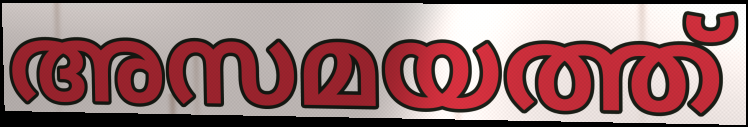
അസമയത്ത്